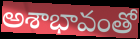
అశాభావంతో